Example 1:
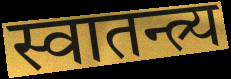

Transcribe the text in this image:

स्वातन्त्र्य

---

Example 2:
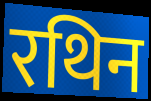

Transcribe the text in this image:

रथिन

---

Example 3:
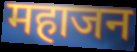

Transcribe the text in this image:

महाजन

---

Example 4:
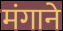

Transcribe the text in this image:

मंगाने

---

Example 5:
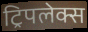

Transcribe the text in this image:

ट्रिपलेक्स